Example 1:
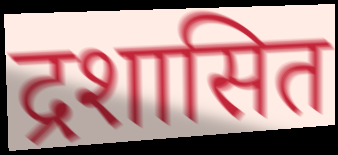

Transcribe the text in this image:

द्रशासित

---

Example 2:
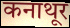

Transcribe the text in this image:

कनाथूर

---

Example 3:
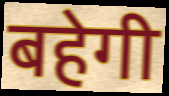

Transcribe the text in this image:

बहेगी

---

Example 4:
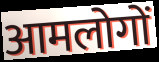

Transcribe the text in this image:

आमलोगों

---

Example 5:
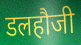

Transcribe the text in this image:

डलहौजी